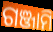
ଗଞ୍ଜାମି